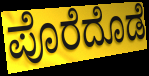
ಪೊರೆದೊಡೆ